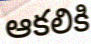
ఆకలికి